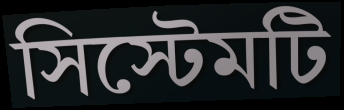
সিস্টেমটি